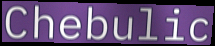
Chebulic